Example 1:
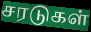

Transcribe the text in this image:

சரடுகள்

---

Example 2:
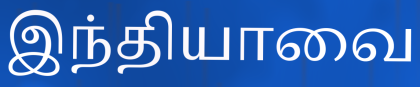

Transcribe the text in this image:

இந்தியாவை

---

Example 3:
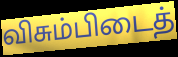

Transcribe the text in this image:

விசும்பிடைத்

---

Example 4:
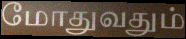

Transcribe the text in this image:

மோதுவதும்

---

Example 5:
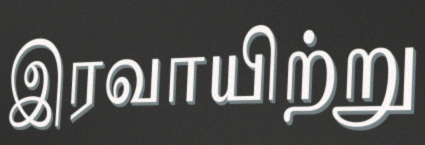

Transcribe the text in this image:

இரவாயிற்று